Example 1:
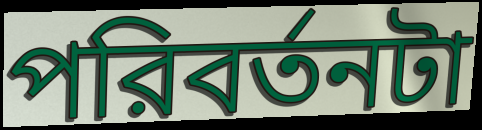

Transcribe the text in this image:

পরিবর্তনটা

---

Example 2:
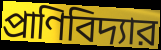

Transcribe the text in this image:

প্রাণিবিদ্যার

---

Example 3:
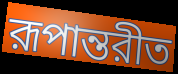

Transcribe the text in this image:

রূপান্তরীত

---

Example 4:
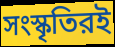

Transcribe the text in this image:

সংস্কৃতিরই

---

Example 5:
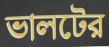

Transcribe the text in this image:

ভালটের